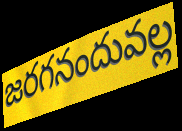
జరగనందువల్ల